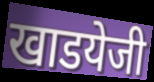
खाडयेजी